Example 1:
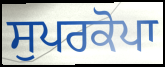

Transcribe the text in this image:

ਸੁਪਰਕੋਪਾ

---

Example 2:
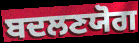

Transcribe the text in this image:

ਬਦਲਣਯੋਗ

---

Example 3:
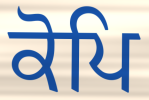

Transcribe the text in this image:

ਕੋਪਿ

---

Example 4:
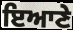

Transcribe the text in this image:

ਇਆਣੇ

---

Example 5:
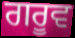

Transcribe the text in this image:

ਗਰੂਵ